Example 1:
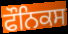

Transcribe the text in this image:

ਫੌਨਿਕਸ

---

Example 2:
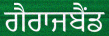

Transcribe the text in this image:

ਗੈਰਾਜਬੈਂਡ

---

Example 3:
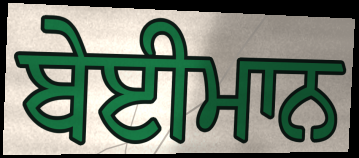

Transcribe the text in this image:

ਬੇਈਮਾਨ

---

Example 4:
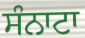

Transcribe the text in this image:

ਸੰਨਾਟਾ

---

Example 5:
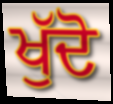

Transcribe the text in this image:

ਖੁੱਦੋ